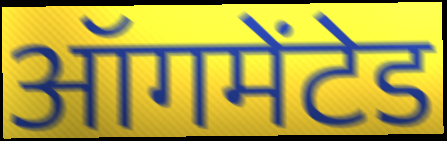
ऑगमेंटेड